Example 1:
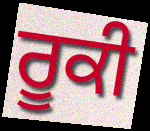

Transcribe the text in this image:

ਰੂਕੀ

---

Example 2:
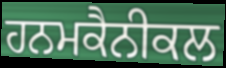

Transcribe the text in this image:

ਹਨਮਕੈਨੀਕਲ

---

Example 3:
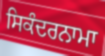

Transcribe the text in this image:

ਸਿਕੰਦਰਨਾਮਾ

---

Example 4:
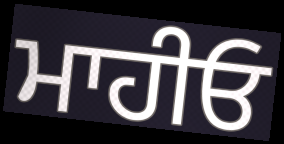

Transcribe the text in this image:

ਮਾਹੀਓ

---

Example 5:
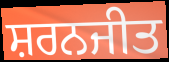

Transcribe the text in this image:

ਸ਼ਰਨਜੀਤ